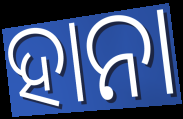
ହାନା